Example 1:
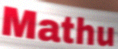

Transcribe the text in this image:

Mathu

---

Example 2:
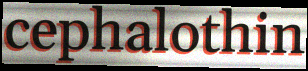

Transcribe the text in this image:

cephalothin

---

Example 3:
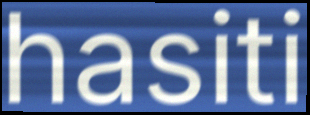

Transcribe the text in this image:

hasiti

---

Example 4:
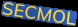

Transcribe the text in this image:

SECMOL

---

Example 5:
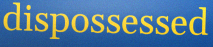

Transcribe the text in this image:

dispossessed